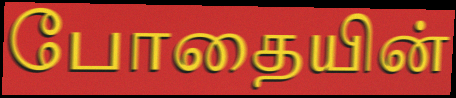
போதையின்